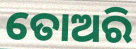
ତୋଅରି